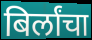
बिर्लांचा